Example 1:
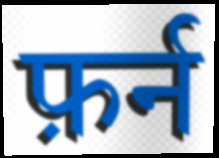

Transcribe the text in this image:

फ़र्न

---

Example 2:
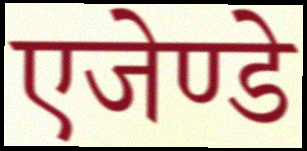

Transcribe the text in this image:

एजेण्डे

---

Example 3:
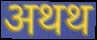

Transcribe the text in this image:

अथथ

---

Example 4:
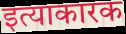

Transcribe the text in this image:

इत्याकारक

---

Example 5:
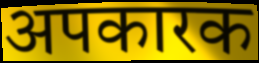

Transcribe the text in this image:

अपकारक